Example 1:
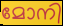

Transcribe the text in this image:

മോനി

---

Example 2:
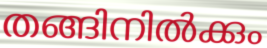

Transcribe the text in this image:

തങ്ങിനിൽക്കും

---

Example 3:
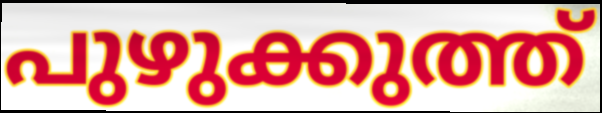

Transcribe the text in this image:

പുഴുക്കുത്ത്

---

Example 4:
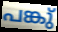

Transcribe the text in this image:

പങ്കു്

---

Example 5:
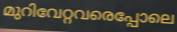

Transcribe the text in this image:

മുറിവേറ്റവരെപ്പോലെ